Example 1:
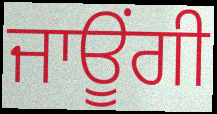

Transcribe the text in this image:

ਜਾਊਂਗੀ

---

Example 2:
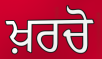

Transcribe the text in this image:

ਖ਼ਰਚੋ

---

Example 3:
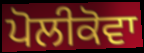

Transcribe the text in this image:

ਪੋਲੀਕੋਵਾ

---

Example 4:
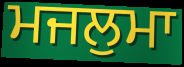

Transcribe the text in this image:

ਮਜਲੁਮਾ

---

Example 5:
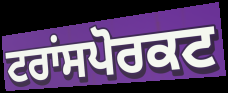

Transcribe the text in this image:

ਟਰਾਂਸਪੋਰਕਟ